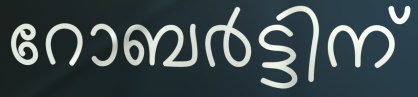
റോബർട്ടിന്